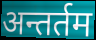
अन्तर्तम